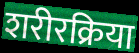
शरीरक्रिया